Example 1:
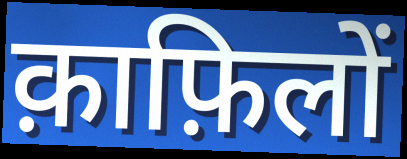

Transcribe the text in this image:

क़ाफ़िलों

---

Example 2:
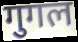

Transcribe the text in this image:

गुगल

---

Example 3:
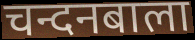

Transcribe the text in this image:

चन्दनबाला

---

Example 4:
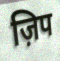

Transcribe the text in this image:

ज़िप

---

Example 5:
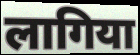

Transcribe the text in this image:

लागिया